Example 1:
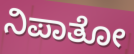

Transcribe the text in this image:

ನಿಪಾತೋ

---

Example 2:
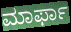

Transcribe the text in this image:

ಮಾರ್ಫಾ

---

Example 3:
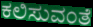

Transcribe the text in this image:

ಕಲಿಸುವಂತೆ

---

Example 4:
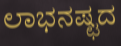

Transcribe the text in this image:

ಲಾಭನಷ್ಟದ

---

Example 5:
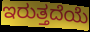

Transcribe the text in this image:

ಇರುತ್ತದೆಯೆ